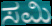
ಸಮಿ